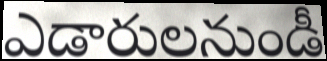
ఎడారులనుండీ